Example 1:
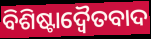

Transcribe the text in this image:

ବିଶିଷ୍ଟାଦ୍ୱୈତବାଦ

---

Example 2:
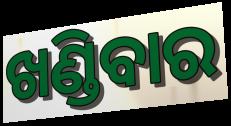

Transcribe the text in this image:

ଖଣ୍ଡିବାର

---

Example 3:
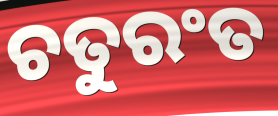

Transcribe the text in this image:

ଚତୁରଂତ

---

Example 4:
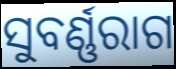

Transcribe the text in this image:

ସୁବର୍ଣ୍ଣରାଗ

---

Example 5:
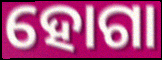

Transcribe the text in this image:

ହୋଗା